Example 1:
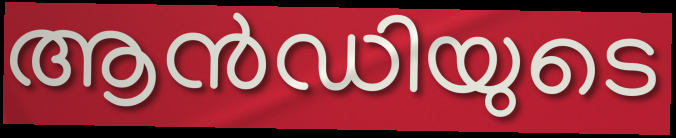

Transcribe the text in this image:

ആൻഡിയുടെ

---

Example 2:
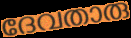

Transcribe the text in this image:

ദേവതാരു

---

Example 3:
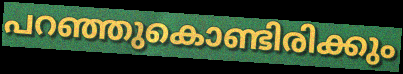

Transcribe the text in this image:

പറഞ്ഞുകൊണ്ടിരിക്കും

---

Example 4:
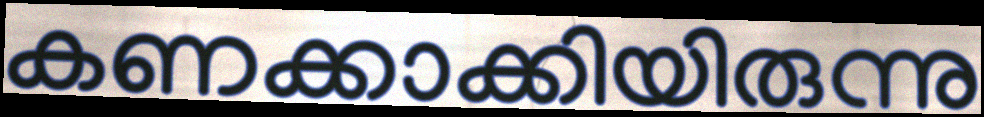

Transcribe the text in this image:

കണക്കാക്കിയിരുന്നു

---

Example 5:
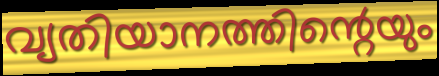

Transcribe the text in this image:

വ്യതിയാനത്തിന്റെയും